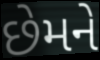
છેમને